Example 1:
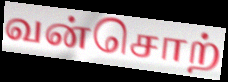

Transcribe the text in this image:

வன்சொற்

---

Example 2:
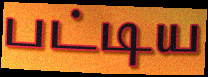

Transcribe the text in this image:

பட்டிய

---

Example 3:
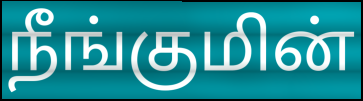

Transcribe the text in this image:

நீங்குமின்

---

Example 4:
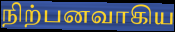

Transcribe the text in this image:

நிற்பனவாகிய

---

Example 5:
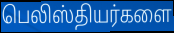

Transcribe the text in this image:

பெலிஸ்தியர்களை